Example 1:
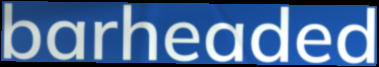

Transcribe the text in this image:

barheaded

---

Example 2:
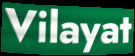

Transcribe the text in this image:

Vilayat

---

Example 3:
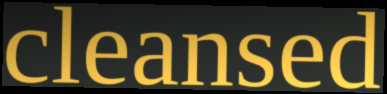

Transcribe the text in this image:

cleansed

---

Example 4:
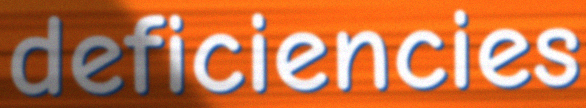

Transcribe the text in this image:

deficiencies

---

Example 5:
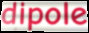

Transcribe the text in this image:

dipole